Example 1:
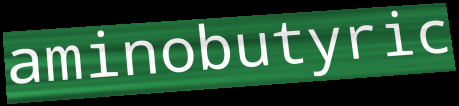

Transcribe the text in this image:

aminobutyric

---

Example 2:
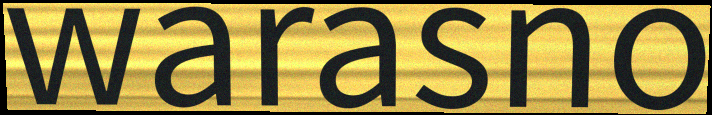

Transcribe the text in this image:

warasno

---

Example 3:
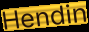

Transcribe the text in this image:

Hendin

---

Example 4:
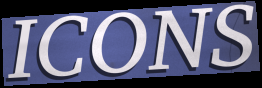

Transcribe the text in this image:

ICONS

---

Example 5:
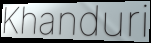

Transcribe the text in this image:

Khanduri